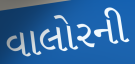
વાલોરની